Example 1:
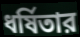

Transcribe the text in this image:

ধর্ষিতার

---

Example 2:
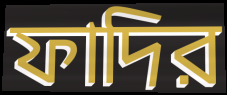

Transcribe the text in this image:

ফাদির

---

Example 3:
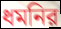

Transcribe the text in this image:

ধমনির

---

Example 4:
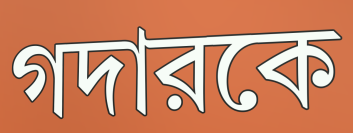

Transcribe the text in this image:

গদারকে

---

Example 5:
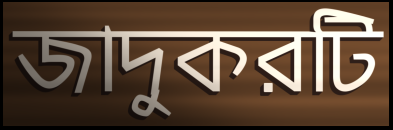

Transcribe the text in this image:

জাদুকরটি